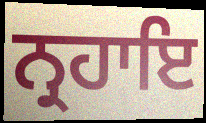
ਨ੍ਰਹਾਇ